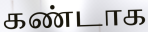
கண்டாக